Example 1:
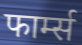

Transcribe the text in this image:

फार्म्स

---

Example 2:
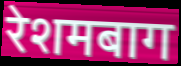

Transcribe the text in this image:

रेशमबाग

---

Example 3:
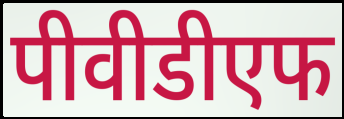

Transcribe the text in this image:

पीवीडीएफ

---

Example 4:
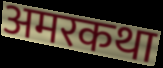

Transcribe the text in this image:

अमरकथा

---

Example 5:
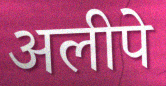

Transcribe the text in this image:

अलीपे